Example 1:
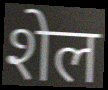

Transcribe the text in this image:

शेल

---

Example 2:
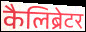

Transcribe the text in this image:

कैलिब्रेटर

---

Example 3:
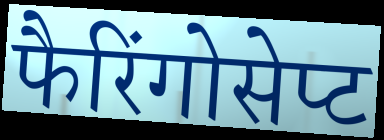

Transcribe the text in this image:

फैरिंगोसेप्ट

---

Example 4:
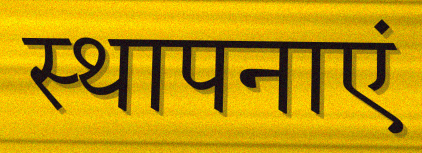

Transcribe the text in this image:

स्थापनाएं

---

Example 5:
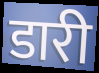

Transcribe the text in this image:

डारी